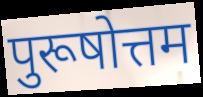
पुरूषोत्तम